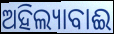
ଅହିଲ୍ୟାବାଈ